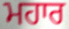
ਮਹਾਰ